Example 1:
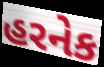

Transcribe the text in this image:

હરનેક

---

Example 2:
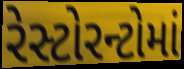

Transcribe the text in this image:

રેસ્ટોરન્ટોમાં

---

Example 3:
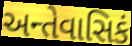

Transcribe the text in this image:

અન્તેવાસિકં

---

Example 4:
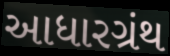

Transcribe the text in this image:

આધારગ્રંથ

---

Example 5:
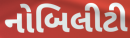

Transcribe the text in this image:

નોબિલીટી